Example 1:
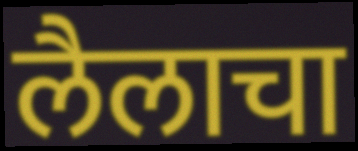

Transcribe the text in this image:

लैलाचा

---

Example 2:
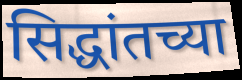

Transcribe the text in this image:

सिद्धांतच्या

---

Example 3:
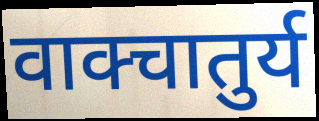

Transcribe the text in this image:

वाक्चातुर्य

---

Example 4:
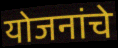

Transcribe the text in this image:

योजनांचे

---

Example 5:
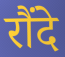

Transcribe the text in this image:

रौंदे